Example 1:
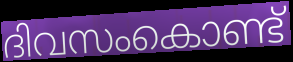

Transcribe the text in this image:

ദിവസംകൊണ്ട്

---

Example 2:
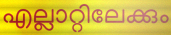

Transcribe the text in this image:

എല്ലാറ്റിലേക്കും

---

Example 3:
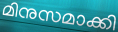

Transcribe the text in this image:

മിനുസമാക്കി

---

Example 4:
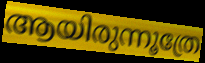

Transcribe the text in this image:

ആയിരുന്നൂത്രേ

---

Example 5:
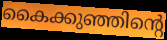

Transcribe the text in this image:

കൈക്കുഞ്ഞിന്റെ